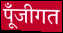
पूँजीगत